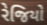
રેજિયો